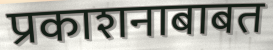
प्रकाशनाबाबत